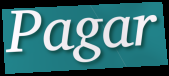
Pagar